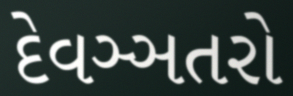
દેવઞ્ઞતરો